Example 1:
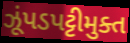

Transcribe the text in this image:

ઝૂંપડપટ્ટીમુક્ત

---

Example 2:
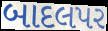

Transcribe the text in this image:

બાદલપર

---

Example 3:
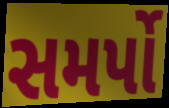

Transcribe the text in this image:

સમર્પો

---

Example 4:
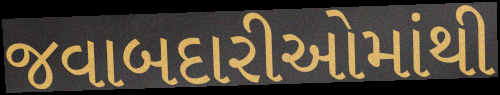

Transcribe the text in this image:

જવાબદારીઓમાંથી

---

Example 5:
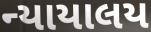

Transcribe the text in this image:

ન્યાયાલય